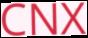
CNX